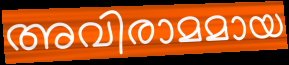
അവിരാമമായ